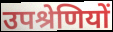
उपश्रेणियों